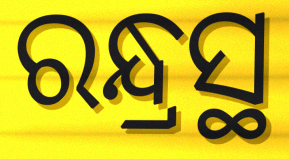
ରନ୍ଧ୍ରସ୍ଥ